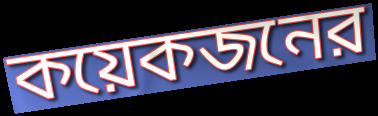
কয়েকজনের